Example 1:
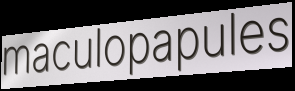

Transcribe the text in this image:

maculopapules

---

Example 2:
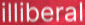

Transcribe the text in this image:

illiberal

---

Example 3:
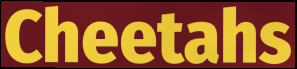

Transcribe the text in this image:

Cheetahs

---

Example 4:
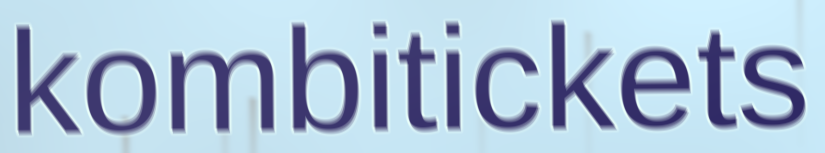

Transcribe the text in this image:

kombitickets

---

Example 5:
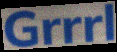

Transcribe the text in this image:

Grrrl